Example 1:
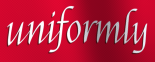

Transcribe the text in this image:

uniformly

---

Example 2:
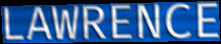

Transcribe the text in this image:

LAWRENCE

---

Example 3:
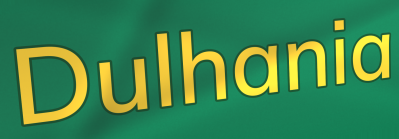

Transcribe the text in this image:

Dulhania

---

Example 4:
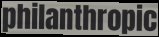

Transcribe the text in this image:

philanthropic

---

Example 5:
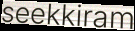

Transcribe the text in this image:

seekkiram